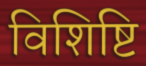
विशिष्टि